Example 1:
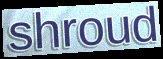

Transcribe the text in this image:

shroud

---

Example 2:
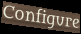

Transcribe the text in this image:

Configure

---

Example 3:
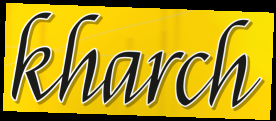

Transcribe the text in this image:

kharch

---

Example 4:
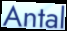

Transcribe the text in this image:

Antal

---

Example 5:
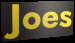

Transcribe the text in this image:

Joes